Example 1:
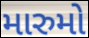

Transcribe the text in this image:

મારુમો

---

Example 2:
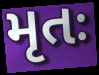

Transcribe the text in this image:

મૃતઃ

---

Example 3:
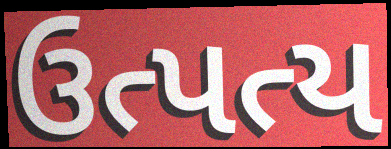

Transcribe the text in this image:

ઉત્પત્ય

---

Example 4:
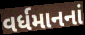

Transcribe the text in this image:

વર્ધમાનનાં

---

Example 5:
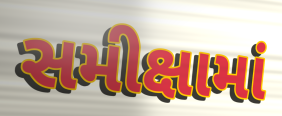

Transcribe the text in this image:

સમીક્ષામાં